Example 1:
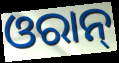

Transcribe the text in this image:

ଓରାନ୍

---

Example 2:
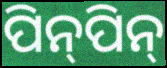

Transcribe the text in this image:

ପିନ୍‍ପିନ୍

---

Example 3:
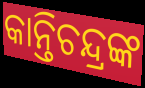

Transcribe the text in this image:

କାନ୍ତିଚନ୍ଦ୍ରଙ୍କ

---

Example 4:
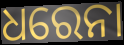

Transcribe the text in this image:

ଧରେନା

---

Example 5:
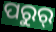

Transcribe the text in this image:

ପରୁର୍